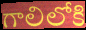
గాలిలోకి